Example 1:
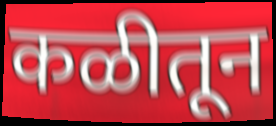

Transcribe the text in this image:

कळीतून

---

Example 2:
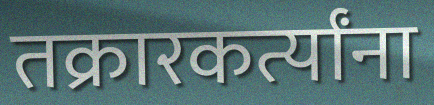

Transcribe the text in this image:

तक्रारकर्त्यांना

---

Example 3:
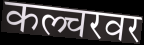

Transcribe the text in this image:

कल्चरवर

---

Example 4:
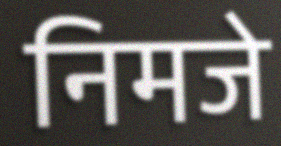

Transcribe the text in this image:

निमजे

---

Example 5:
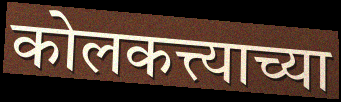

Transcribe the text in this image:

कोलकत्त्याच्या